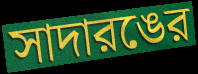
সাদারঙের